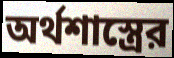
অর্থশাস্ত্রের